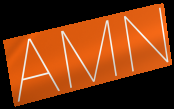
AMN